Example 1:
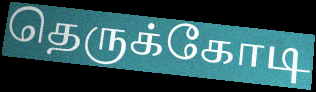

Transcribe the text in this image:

தெருக்கோடி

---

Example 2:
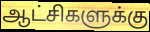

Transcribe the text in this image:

ஆட்சிகளுக்கு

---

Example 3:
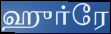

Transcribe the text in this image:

ஹுர்ரே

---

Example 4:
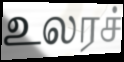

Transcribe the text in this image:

உலரச்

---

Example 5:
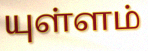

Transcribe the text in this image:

யுள்ளம்